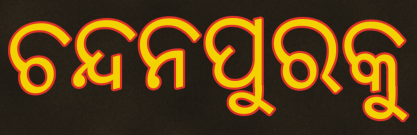
ଚନ୍ଦନପୁରକୁ